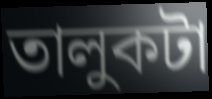
তালুকটা